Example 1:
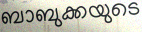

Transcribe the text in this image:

ബാബുക്കയുടെ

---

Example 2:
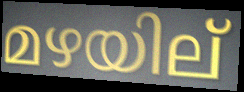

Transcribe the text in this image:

മഴയില്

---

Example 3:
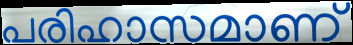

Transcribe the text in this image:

പരിഹാസമാണ്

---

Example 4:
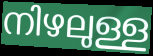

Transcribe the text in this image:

നിഴലുള്ള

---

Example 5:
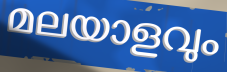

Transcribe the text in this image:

മലയാളവും